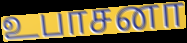
உபாசனா